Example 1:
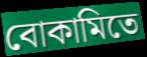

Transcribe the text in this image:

বোকামিতে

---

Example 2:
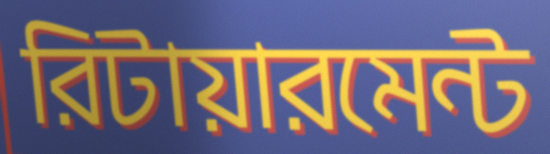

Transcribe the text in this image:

রিটায়ারমেন্ট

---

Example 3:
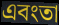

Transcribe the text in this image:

এবংতা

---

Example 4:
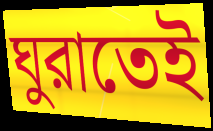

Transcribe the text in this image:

ঘুরাতেই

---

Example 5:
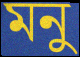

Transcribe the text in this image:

মনু